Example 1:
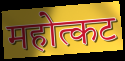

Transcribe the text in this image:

महोत्कट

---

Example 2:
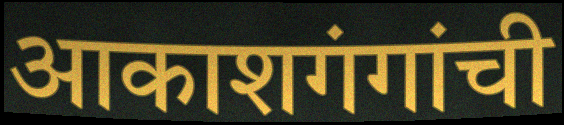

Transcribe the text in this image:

आकाशगंगांची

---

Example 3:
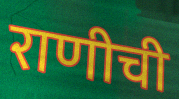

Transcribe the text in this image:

राणीची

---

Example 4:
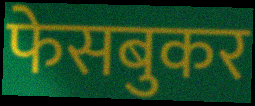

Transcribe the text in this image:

फेसबुकर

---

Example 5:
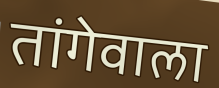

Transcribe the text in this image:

तांगेवाला